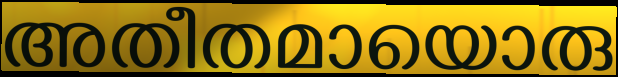
അതീതമായൊരു